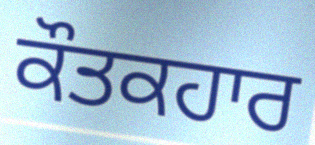
ਕੌਤਕਹਾਰ